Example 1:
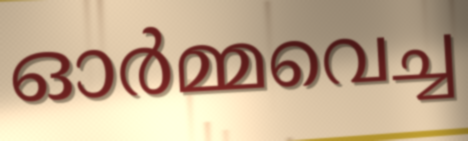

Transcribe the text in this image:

ഓർമ്മവെച്ച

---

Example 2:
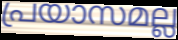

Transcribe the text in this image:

പ്രയാസമല്ല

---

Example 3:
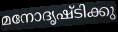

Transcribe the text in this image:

മനോദൃഷ്ടിക്കു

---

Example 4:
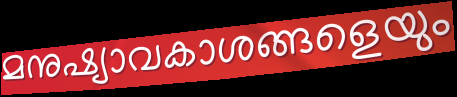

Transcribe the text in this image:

മനുഷ്യാവകാശങ്ങളെയും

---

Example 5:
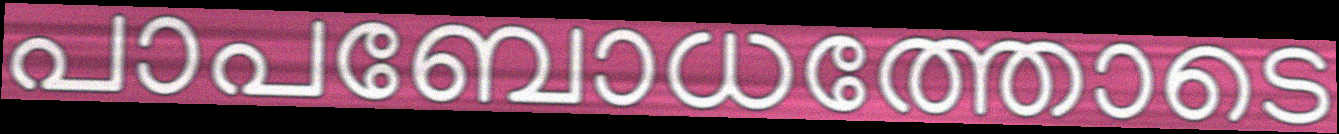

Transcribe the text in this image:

പാപബോധത്തോടെ